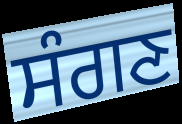
ਸੰਗਣ